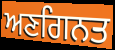
ਅਣਗਿਨਤ